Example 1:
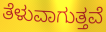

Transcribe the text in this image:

ತೆಳುವಾಗುತ್ತವೆ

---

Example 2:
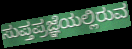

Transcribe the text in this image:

ಸುಪ್ತಪ್ರಜ್ಞೆಯಲ್ಲಿರುವ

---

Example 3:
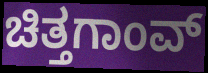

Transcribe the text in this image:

ಚಿತ್ತಗಾಂವ್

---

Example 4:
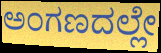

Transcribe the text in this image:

ಅಂಗಣದಲ್ಲೇ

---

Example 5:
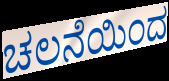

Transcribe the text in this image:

ಚಲನೆಯಿಂದ